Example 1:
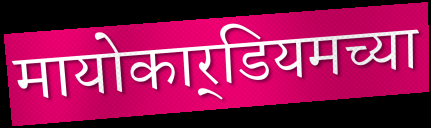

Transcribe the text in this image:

मायोकार्डियमच्या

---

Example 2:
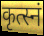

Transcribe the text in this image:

कृत्स्नं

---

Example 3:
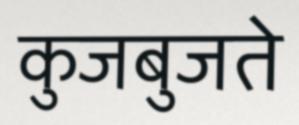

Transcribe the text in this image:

कुजबुजते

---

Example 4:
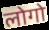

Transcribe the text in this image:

लोगो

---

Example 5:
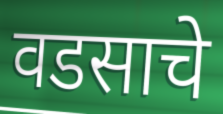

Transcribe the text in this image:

वडसाचे